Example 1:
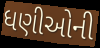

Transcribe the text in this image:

ધણીઓની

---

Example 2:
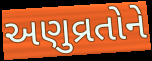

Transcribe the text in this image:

અણુવ્રતોને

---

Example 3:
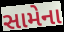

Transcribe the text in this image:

સામેના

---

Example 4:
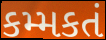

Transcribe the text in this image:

કમ્મકતં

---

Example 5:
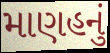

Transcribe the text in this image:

માણહનું